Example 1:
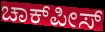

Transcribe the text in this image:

ಚಾಕ್‍ಪೀಸ್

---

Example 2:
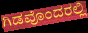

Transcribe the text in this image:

ಗಿಡವೊಂದರಲ್ಲಿ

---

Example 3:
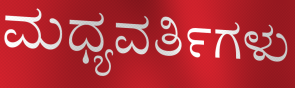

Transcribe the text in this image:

ಮಧ್ಯವರ್ತಿಗಳು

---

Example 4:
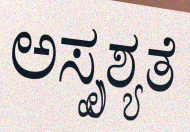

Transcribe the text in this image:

ಅಸ್ಪೃಶ್ಯತೆ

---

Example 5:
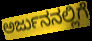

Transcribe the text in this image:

ಅರ್ಜುನನಲ್ಲಿಗೆ